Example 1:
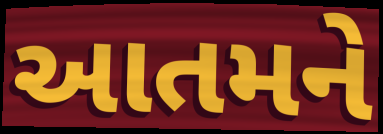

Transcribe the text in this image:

આતમને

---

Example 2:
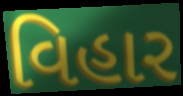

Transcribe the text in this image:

વિહાર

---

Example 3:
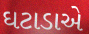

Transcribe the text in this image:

ઘટાડાએ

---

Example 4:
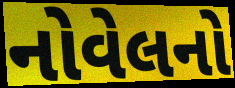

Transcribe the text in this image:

નોવેલનો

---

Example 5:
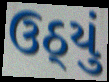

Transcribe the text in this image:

ઉઠ્યું